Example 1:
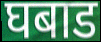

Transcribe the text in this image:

घबाड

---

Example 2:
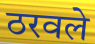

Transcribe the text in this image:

ठरवले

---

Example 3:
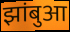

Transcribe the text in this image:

झांबुआ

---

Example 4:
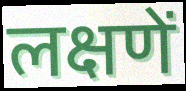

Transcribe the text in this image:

लक्षणें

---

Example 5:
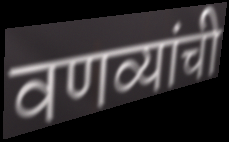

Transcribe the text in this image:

वणव्यांची